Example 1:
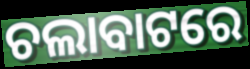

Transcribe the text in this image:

ଚଲାବାଟରେ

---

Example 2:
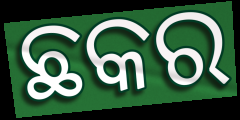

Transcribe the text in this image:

ଛକର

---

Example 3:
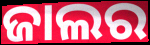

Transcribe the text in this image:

ଜାଲର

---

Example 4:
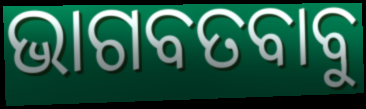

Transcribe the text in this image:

ଭାଗବତବାବୁ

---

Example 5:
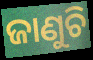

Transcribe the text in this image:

ଜାଣୁଚି